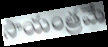
సాయంత్రమే